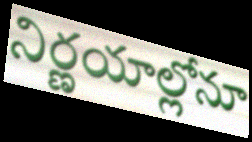
నిర్ణయాల్లోనూ